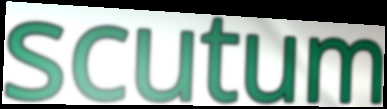
scutum